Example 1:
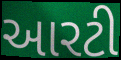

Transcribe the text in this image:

આરટી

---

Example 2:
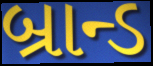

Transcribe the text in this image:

બ્રાન્ડ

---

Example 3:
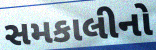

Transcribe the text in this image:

સમકાલીનો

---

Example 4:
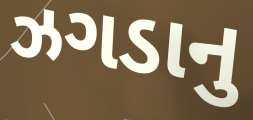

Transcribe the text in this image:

ઝગડાનુ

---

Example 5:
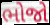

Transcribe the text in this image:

ભોજો